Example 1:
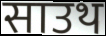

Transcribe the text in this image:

साउथ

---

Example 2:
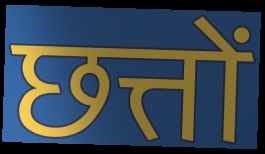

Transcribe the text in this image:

छत्तों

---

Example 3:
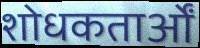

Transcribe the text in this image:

शोधकतार्ओं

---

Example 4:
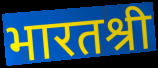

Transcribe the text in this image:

भारतश्री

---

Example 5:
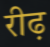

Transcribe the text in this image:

रीढ़